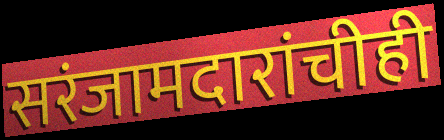
सरंजामदारांचीही